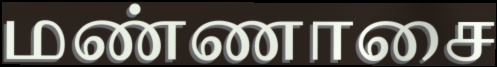
மண்ணாசை